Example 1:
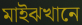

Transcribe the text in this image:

মাইঝখানে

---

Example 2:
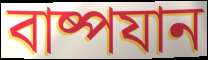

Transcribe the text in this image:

বাষ্পযান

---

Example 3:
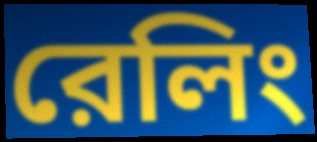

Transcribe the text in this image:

রেলিং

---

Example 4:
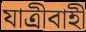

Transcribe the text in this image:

যাত্রীবাহী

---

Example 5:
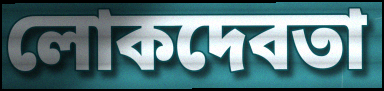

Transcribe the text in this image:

লোকদেবতা